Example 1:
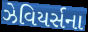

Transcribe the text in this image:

ઝેવિયર્સના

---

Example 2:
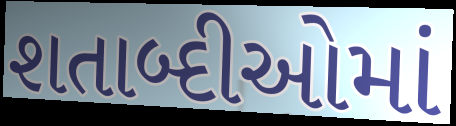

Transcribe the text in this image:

શતાબ્દીઓમાં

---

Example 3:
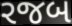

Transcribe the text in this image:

રજબ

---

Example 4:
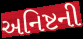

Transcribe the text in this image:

અનિષ્ટની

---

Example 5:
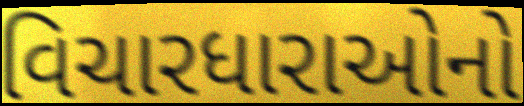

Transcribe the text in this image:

વિચારધારાઓનો